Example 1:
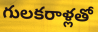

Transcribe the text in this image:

గులకరాళ్లతో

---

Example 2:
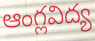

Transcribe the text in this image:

ఆంగ్లవిద్య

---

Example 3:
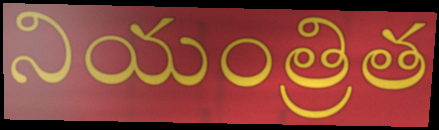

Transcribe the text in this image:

నియంత్రిత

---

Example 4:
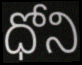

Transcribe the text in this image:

ధోని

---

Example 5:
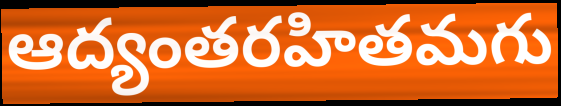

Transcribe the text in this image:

ఆద్యంతరహితమగు